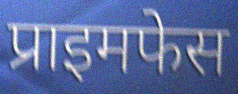
प्राइमफेस